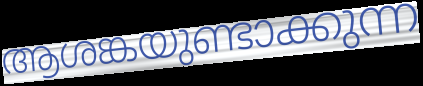
ആശങ്കയുണ്ടാക്കുന്ന